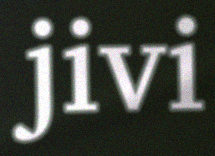
jivi